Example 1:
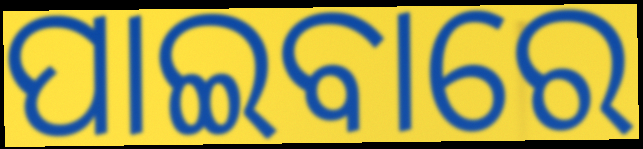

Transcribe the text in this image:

ପାଇବାରେ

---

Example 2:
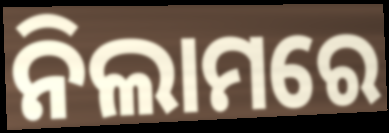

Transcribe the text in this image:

ନିଲାମରେ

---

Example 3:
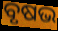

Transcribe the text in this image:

ବୃଷଭ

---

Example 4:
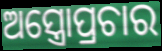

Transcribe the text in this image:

ଅସ୍ତ୍ରୋପ୍ରଚାର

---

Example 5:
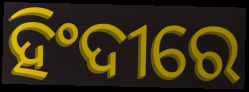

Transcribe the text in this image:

ହିଂଦୀରେ